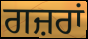
ਗਜ਼ਰਾਂ